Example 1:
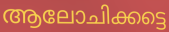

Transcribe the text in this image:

ആലോചിക്കട്ടെ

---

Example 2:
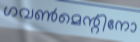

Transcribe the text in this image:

ഗവൺമെന്റിനോ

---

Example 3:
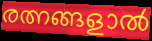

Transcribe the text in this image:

രത്നങ്ങളാൽ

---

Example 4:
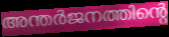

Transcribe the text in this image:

അന്തർജനത്തിന്റെ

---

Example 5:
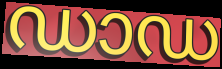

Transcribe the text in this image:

ഡാഡ